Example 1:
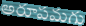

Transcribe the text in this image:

అరూపమగు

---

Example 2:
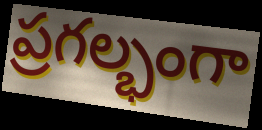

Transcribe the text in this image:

ప్రగల్భంగా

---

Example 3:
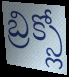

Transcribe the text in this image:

బ్రిక్స్లో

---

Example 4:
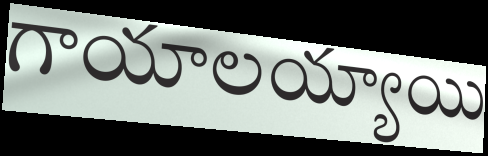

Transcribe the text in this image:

గాయాలయ్యాయి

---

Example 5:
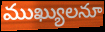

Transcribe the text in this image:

ముఖ్యులనూ